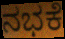
ನಭಕೆ